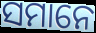
ସମାନେ